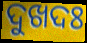
ଦୁଖଦଃ